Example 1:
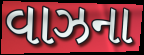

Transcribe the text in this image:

વાઝના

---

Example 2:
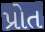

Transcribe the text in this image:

પ્રોત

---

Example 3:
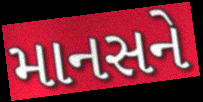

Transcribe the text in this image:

માનસને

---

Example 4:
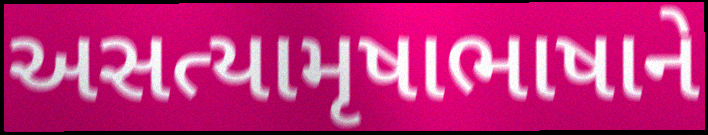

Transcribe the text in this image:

અસત્યામૃષાભાષાને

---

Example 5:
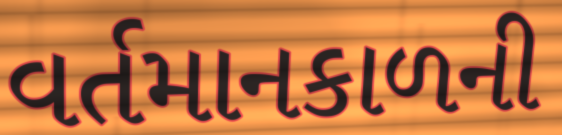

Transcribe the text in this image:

વર્તમાનકાળની